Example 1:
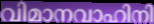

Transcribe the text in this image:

വിമാനവാഹിനി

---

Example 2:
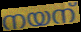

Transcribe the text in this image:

നയന്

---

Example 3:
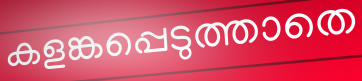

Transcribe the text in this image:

കളങ്കപ്പെടുത്താതെ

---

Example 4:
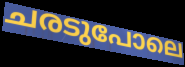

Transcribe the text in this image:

ചരടുപോലെ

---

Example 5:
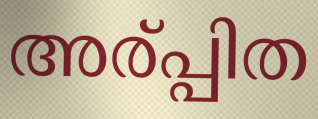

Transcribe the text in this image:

അര്പ്പിത